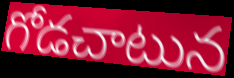
గోడచాటున